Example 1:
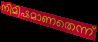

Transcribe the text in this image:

നിമിഷമാണതെന്ന്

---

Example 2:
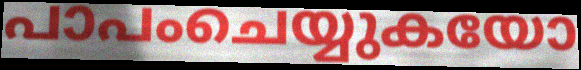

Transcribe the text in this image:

പാപംചെയ്യുകയോ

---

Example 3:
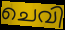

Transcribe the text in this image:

ചെവി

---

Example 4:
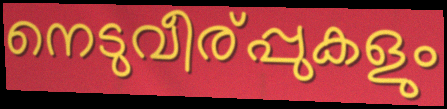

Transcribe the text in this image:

നെടുവീര്പ്പുകളും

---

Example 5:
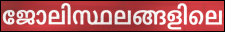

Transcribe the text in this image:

ജോലിസ്ഥലങ്ങളിലെ